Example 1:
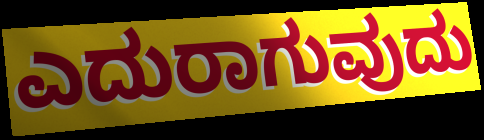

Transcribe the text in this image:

ಎದುರಾಗುವುದು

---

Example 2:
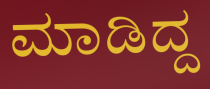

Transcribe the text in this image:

ಮಾಡಿದ್ದ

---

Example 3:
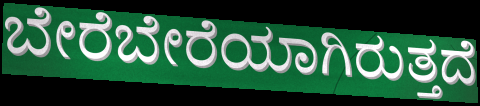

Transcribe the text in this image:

ಬೇರೆಬೇರೆಯಾಗಿರುತ್ತದೆ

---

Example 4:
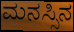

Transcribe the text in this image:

ಮನಸ್ಸಿನ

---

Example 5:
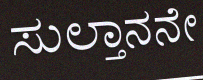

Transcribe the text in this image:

ಸುಲ್ತಾನನೇ